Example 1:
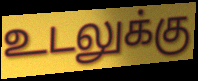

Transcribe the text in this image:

உடலுக்கு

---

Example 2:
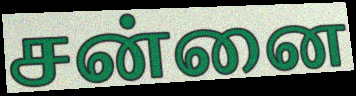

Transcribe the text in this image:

சன்னை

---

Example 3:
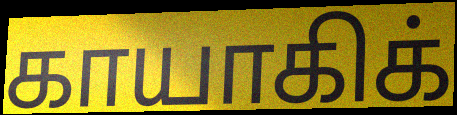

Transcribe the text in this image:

காயாகிக்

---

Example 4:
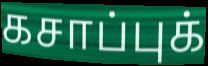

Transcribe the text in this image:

கசாப்புக்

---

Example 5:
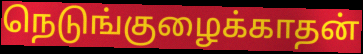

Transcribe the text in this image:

நெடுங்குழைக்காதன்